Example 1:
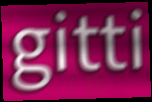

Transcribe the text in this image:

gitti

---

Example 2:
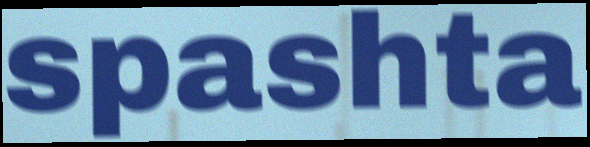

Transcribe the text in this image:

spashta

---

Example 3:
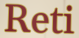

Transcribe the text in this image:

Reti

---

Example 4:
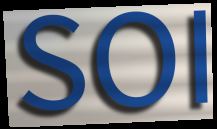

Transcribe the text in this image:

SOI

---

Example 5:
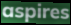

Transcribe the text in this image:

aspires